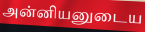
அன்னியனுடைய